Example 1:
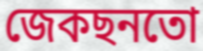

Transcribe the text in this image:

জেকছনতো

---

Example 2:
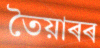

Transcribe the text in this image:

তৈয়াৰৰ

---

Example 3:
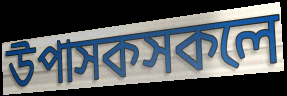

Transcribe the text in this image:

উপাসকসকলে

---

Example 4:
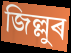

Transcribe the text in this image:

জিল্লুৰ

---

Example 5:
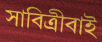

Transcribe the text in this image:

সাবিত্ৰীবাই